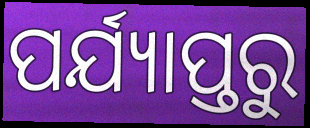
ପର୍ଯ୍ୟାପ୍ତରୁ